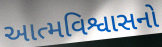
આત્મવિશ્વાસનો